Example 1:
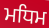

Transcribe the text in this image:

ਮਧਿਮ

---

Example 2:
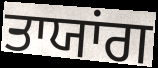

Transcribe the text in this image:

ਤਾਯਾਂਗ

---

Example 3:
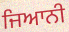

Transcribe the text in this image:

ਜਿਆਨੀ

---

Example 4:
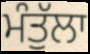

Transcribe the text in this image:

ਮੰਤੁੱਲਾ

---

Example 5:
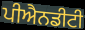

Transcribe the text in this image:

ਪੀਐਨਡੀਟੀ